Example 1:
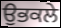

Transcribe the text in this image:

ਉਭਕਲੇ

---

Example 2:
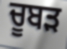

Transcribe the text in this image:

ਚੂਬੜ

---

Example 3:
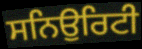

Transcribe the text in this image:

ਸਨਿਉਰਿਟੀ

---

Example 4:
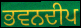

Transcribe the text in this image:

ਭਵਨਦੀਪ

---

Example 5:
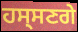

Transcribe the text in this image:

ਹਸ੍ਸਣਗੇ